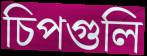
চিপগুলি